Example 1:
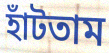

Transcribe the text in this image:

হাঁটতাম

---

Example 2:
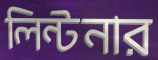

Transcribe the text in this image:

লিন্টনার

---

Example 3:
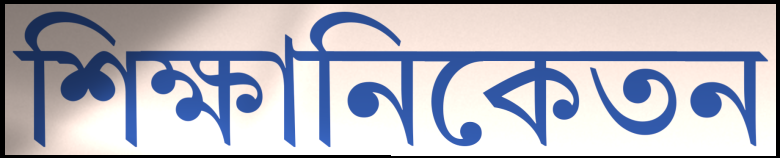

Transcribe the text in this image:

শিক্ষানিকেতন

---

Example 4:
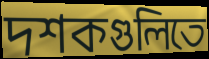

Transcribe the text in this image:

দশকগুলিতে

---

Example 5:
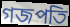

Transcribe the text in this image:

গজপতি